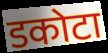
डकोटा